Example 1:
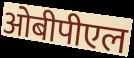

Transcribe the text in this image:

ओबीपीएल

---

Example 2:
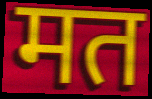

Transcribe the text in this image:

मत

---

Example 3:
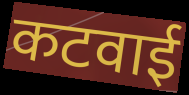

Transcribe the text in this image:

कटवाई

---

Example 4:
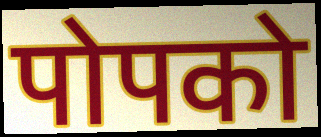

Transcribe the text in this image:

पोपको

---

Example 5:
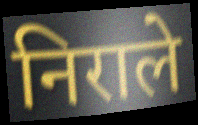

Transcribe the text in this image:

निराले